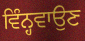
ਵਿੰਨ੍ਹਵਾਉਣ